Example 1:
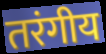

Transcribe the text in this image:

तरंगीय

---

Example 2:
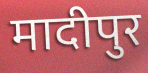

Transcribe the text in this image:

मादीपुर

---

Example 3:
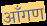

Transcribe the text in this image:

आँगण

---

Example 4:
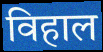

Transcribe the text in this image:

विहाल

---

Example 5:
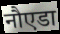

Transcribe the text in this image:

नौएडा